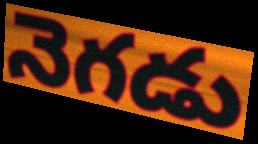
నెగడు